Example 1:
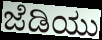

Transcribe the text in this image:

ಜೆಡಿಯು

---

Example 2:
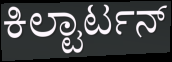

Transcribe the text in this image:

ಕಿಲ್ಟಾರ್ಟನ್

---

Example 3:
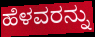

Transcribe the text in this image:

ಹೆಳವರನ್ನು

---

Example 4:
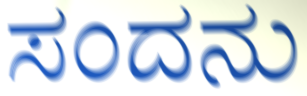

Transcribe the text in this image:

ಸಂದನು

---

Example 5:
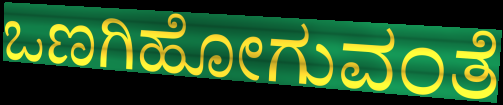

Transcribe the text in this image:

ಒಣಗಿಹೋಗುವಂತೆ